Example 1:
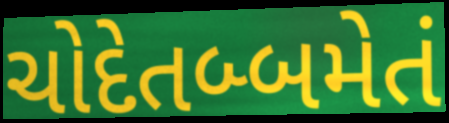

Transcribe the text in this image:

ચોદેતબ્બમેતં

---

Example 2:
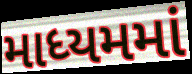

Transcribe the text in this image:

માધ્યમમાં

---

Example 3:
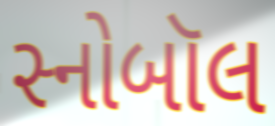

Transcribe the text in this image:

સ્નોબૉલ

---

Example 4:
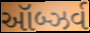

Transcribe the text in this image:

ઑબ્ઝર્વ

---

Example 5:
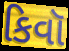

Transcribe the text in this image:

કિવૉ